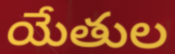
యేతుల